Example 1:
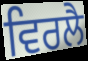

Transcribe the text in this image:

ਵਿਰਲੈ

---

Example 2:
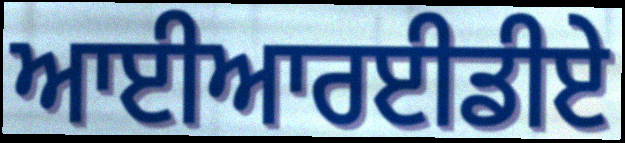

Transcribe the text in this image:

ਆਈਆਰਈਡੀਏ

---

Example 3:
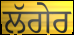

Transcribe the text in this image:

ਲੱਗੇਰ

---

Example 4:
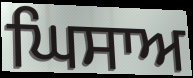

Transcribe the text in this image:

ਘਿਸਾਅ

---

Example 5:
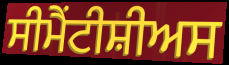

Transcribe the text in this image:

ਸੀਮੈਂਟੀਸ਼ੀਅਸ